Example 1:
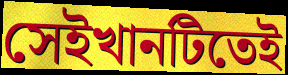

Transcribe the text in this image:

সেইখানটিতেই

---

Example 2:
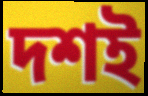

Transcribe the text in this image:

দশই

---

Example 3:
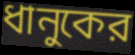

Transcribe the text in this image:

ধানুকের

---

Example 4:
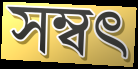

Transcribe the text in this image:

সম্বৎ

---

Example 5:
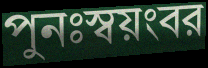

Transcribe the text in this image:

পুনঃস্বয়ংবর